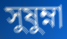
সুষুম্না